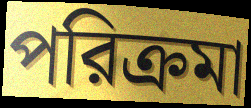
পরিক্রমা